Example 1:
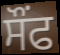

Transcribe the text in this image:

ਸੌਂਫ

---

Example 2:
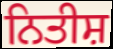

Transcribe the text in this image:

ਨਿਤੀਸ਼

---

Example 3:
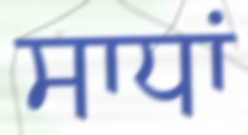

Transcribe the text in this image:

ਸਾਧਾਂ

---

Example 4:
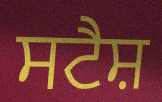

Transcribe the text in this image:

ਸਟੈਸ਼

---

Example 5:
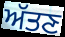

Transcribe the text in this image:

ਅੱਤਣ